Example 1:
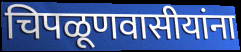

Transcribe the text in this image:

चिपळूणवासीयांना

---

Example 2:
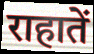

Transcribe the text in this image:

राहातें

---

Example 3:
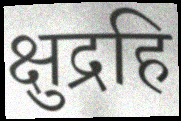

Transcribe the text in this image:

क्षुद्रहि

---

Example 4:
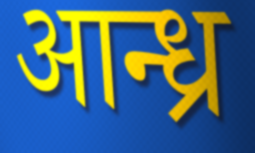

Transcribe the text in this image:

आन्ध्र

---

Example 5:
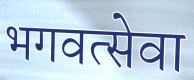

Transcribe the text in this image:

भगवत्सेवा